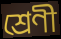
শ্রেণী